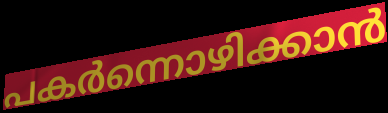
പകർന്നൊഴിക്കാൻ